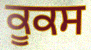
ਕੂਕਸ